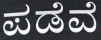
ಪಡೆವೆ